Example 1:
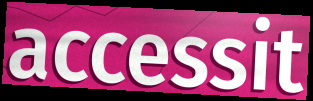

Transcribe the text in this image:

accessit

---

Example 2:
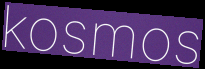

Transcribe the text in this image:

kosmos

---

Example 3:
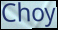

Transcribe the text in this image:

Choy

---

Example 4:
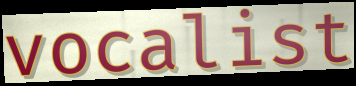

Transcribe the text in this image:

vocalist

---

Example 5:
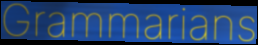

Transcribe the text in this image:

Grammarians